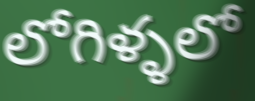
లోగిళ్ళలో